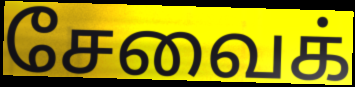
சேவைக்